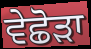
ਵੇਛੋੜਾ